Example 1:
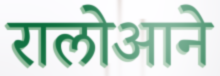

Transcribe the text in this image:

रालोआने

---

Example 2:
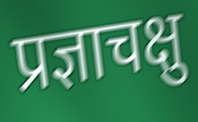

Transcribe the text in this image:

प्रज्ञाचक्षु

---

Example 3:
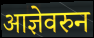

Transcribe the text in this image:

आज्ञेवरुन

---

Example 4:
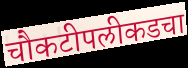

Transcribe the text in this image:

चौकटीपलीकडचा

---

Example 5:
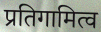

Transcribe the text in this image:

प्रतिगामित्व